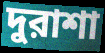
দুরাশা